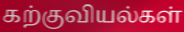
கற்குவியல்கள்